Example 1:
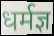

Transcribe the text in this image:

धर्मज्ञ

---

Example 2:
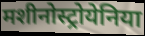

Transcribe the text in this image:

मशीनोस्ट्रोयेनिया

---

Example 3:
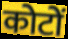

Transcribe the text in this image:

कोटों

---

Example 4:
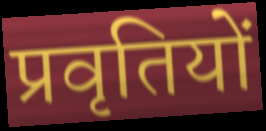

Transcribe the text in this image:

प्रवृतियों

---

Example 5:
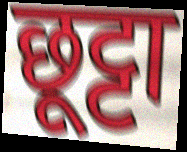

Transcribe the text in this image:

छूट्टा